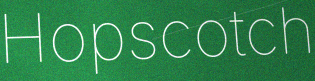
Hopscotch